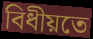
বিধীয়তে